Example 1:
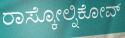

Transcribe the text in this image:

ರಾಸ್ಕೋಲ್ನಿಕೋವ್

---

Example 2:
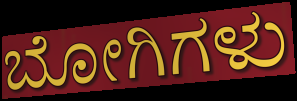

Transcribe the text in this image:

ಬೋಗಿಗಳು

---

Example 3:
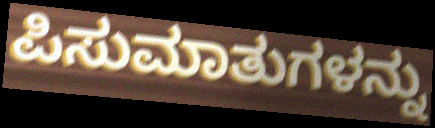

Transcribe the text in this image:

ಪಿಸುಮಾತುಗಳನ್ನು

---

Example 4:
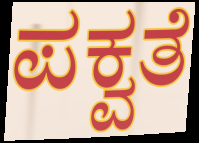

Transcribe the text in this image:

ಪಕ್ವತೆ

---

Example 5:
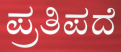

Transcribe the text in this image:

ಪ್ರತಿಪದೆ